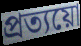
প্ৰত্যয়ো